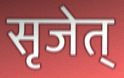
सृजेत्